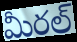
మీరల్